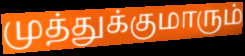
முத்துக்குமாரும்